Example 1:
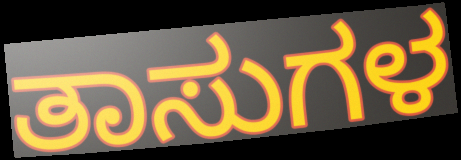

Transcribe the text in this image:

ತಾಸುಗಳ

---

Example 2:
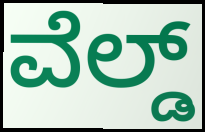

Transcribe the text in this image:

ವೆಲ್ಡ್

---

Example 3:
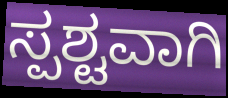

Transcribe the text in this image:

ಸ್ಪಶ್ಟವಾಗಿ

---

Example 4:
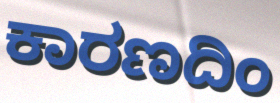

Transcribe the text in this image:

ಕಾರಣದಿಂ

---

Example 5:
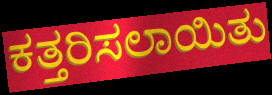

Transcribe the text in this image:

ಕತ್ತರಿಸಲಾಯಿತು